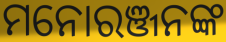
ମନୋରଞ୍ଜନଙ୍କ